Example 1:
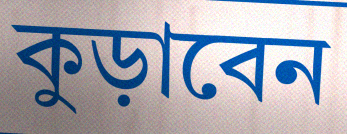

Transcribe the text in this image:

কুড়াবেন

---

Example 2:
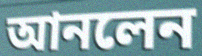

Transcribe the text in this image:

আনলেন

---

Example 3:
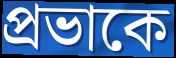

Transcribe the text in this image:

প্রভাকে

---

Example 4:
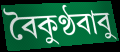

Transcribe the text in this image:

বৈকুণ্ঠবাবু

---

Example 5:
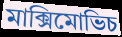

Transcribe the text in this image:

মাক্সিমোভিচ